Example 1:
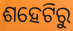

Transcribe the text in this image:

ଶହେଟିରୁ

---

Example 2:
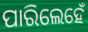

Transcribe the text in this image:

ପାରିଲେହେଁ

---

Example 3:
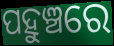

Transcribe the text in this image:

ପହୁଞ୍ଚରେ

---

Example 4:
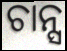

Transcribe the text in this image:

ଚାନ୍ସ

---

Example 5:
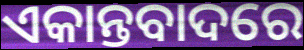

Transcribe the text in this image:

ଏକାନ୍ତବାଦରେ